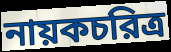
নায়কচরিত্র